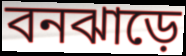
বনঝাড়ে